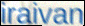
iraivan